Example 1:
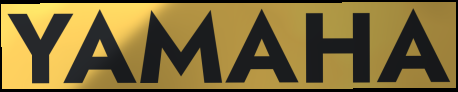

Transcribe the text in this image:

YAMAHA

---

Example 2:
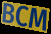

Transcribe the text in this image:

BCM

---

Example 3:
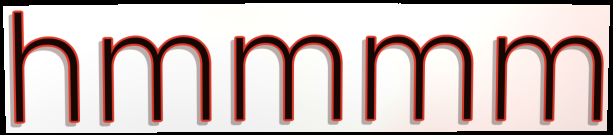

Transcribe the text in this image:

hmmmm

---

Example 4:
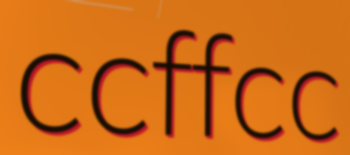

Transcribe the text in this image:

ccffcc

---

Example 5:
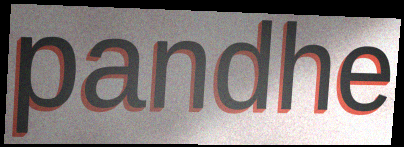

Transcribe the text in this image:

pandhe